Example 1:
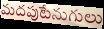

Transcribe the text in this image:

మదపుటేనుగులు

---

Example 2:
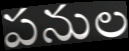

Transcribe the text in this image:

పనుల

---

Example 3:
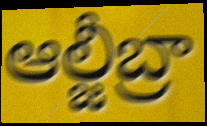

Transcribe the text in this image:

ఆల్జీబ్రా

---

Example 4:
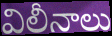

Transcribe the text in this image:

విలీనాలు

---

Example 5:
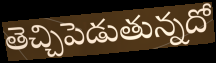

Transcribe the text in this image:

తెచ్చిపెడుతున్నదో